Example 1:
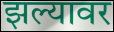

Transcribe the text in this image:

झल्यावर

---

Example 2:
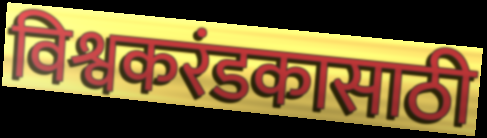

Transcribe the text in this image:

विश्वकरंडकासाठी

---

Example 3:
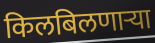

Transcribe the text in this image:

किलबिलणाऱ्या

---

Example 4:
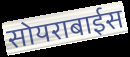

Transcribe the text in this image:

सोयराबाईस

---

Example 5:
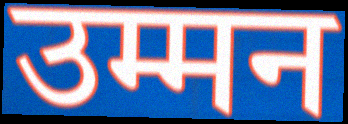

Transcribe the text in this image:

उम्मन